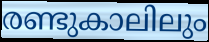
രണ്ടുകാലിലും